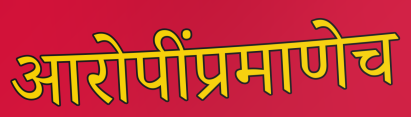
आरोपींप्रमाणेच